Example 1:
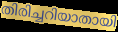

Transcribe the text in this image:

തിരിച്ചറിയാതായി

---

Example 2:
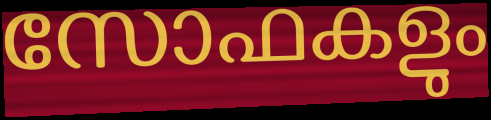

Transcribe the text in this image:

സോഫകളും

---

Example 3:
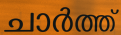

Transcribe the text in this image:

ചാർത്ത്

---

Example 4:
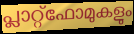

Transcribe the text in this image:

പ്ലാറ്റ്ഫോമുകളും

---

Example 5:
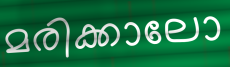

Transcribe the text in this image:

മരിക്കാലോ